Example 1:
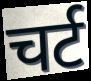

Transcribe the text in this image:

चर्ट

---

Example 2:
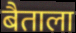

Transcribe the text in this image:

बैताला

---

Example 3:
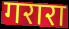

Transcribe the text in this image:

गरारा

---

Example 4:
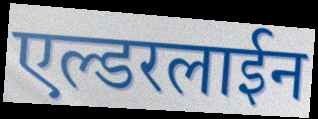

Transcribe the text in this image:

एल्डरलाईन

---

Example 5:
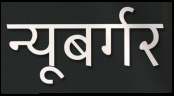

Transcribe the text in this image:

न्यूबर्गर